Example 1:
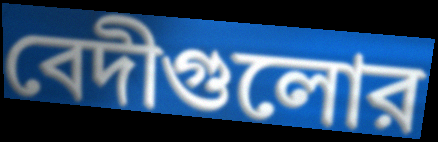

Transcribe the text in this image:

বেদীগুলোর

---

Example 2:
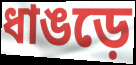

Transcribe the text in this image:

ধাঙড়ে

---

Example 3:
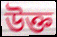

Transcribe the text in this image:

উক্ত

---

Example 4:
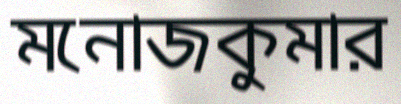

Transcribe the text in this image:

মনোজকুমার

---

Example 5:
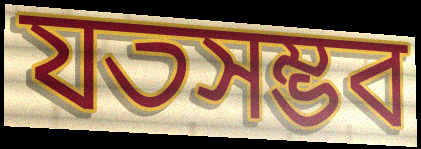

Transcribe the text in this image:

যতসম্ভব